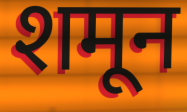
शमून